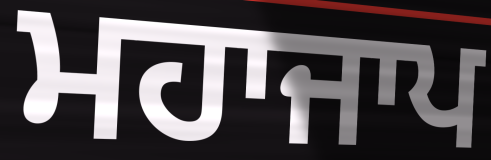
ਮਹਾਜਾਪ